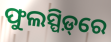
ଫୁଲସ୍ପିଡ଼୍‌ରେ